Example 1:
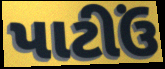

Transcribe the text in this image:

પાટીઉં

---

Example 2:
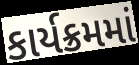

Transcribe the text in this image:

કાર્યક્રમમાં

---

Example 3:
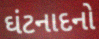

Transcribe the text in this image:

ઘંટનાદનો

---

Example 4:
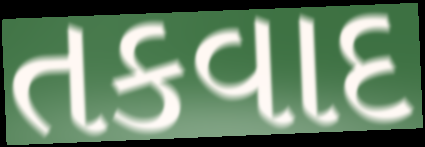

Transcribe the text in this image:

તકવાદ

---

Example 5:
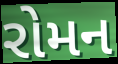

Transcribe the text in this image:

રોમન